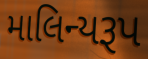
માલિન્યરૂપ